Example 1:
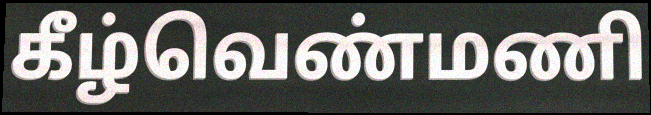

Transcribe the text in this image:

கீழ்வெண்மணி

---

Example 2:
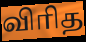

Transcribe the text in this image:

விரித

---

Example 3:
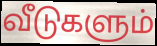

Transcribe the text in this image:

வீடுகளும்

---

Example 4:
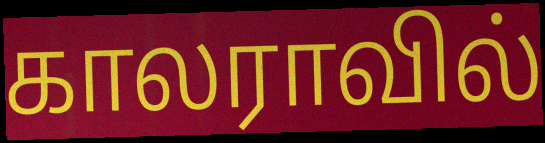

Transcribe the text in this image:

காலராவில்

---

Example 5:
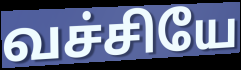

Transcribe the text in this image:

வச்சியே